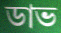
ডাভ